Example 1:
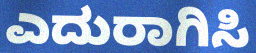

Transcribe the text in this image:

ಎದುರಾಗಿಸಿ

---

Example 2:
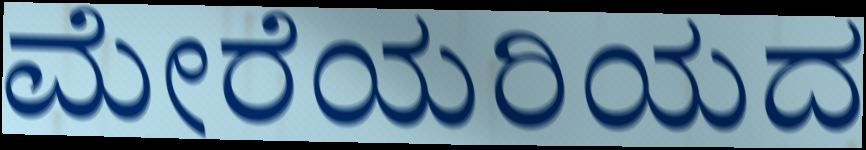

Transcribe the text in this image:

ಮೇರೆಯರಿಯದ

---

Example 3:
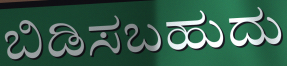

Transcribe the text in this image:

ಬಿಡಿಸಬಹುದು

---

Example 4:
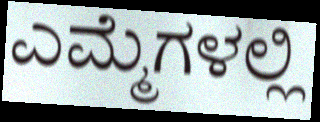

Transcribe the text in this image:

ಎಮ್ಮೆಗಳಲ್ಲಿ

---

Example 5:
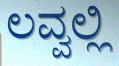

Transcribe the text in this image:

ಲವ್ವಲ್ಲಿ